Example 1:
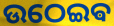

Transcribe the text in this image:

ଉଠେଇଵ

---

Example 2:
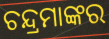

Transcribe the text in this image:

ଚନ୍ଦ୍ରମାଙ୍କର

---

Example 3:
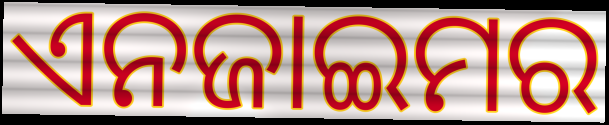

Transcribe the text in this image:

ଏନଜାଇମର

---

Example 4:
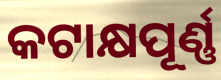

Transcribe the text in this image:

କଟାକ୍ଷପୂର୍ଣ୍ଣ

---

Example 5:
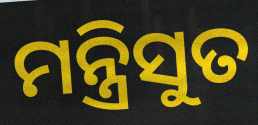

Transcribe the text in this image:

ମନ୍ତ୍ରିସୁତ